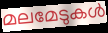
മലമേടുകൾ